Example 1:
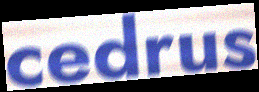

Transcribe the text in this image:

cedrus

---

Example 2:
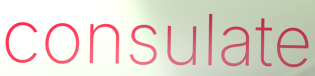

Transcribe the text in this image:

consulate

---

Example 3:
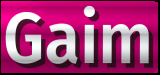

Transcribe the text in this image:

Gaim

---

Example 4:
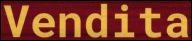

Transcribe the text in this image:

Vendita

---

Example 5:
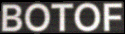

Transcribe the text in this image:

BOTOF